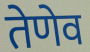
तेणेव